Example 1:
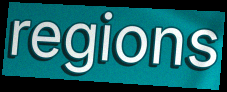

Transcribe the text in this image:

regions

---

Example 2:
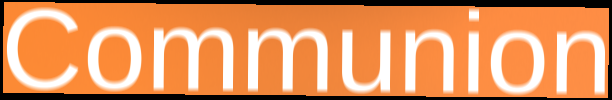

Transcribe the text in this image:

Communion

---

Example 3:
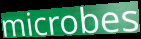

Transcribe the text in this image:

microbes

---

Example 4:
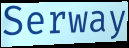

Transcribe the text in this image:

Serway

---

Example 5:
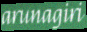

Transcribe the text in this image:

arunagiri